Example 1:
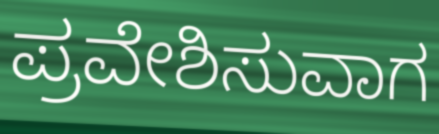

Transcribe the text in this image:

ಪ್ರವೇಶಿಸುವಾಗ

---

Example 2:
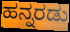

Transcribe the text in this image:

ಹನ್ನರಡು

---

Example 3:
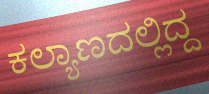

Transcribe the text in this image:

ಕಲ್ಯಾಣದಲ್ಲಿದ್ದ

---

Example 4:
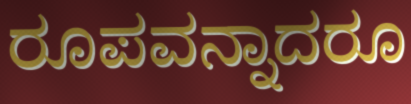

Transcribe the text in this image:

ರೂಪವನ್ನಾದರೂ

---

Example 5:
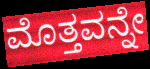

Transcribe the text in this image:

ಮೊತ್ತವನ್ನೇ